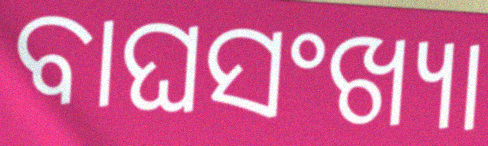
ବାଘସଂଖ୍ୟା